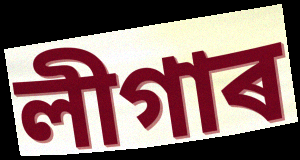
লীগাৰ